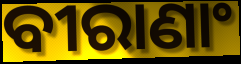
ବୀରାଣାଂ